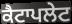
ਕੈਟਾਪਲੇਟ